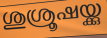
ശുശ്രൂഷയ്ക്കു